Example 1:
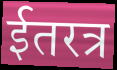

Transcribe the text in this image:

ईतरत्र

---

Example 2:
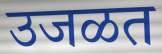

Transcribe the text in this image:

उजळत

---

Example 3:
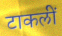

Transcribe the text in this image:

टाकलीं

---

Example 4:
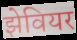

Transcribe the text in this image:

झेवियर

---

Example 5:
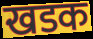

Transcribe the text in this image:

खडक